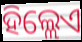
ହିଲ୍ଲେଏ